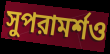
সুপরামর্শও